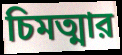
চিমত্মার